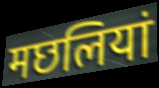
मछलियां